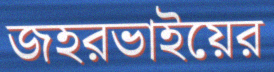
জহরভাইয়ের